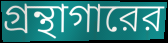
গ্রন্থাগারের